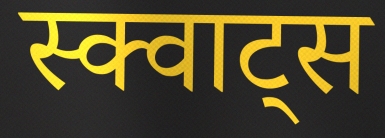
स्क्वाट्स